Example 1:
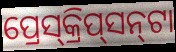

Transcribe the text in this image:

ପ୍ରେସ୍‌କ୍ରିପ୍‌ସନ୍‌ଟା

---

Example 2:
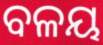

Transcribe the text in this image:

ବଳୟ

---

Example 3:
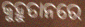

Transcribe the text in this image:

କୁହୁତାନରେ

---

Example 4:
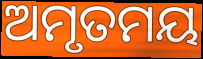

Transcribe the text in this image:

ଅମୃତମୟ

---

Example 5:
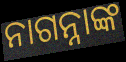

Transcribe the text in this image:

ନାଗନ୍ନାଙ୍କ